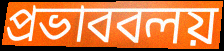
প্রভাববলয়